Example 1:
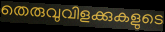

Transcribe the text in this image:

തെരുവുവിളക്കുകളുടെ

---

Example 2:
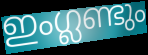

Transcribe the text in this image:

ഇംഗ്ലണ്ടും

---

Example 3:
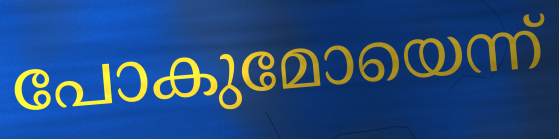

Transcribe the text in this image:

പോകുമോയെന്ന്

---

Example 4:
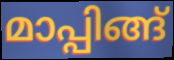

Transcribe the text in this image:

മാപ്പിങ്ങ്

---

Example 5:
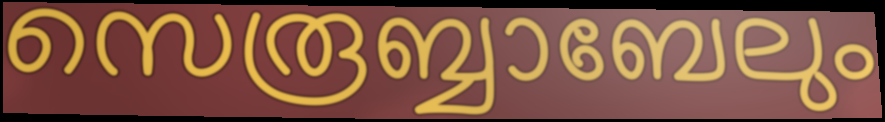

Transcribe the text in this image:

സെരൂബ്ബാബേലും